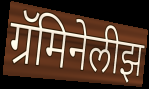
ग्रॅमिनेलीझ